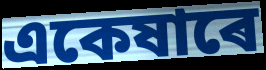
একেষাৰে